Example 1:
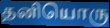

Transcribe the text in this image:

தனியொரு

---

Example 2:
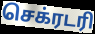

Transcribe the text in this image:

செக்ரடரி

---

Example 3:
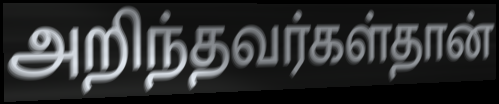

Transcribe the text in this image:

அறிந்தவர்கள்தான்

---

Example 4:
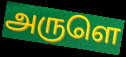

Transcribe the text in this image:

அருளெ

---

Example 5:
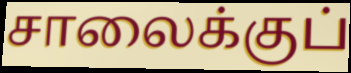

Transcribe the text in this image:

சாலைக்குப்